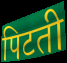
पिटती